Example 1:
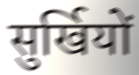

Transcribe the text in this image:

सुर्खियों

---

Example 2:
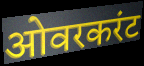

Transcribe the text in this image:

ओवरकरंट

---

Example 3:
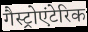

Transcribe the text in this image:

गैस्ट्रोएंटेरिक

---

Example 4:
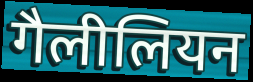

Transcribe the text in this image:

गैलीलियन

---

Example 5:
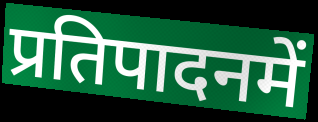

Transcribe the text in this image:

प्रतिपादनमें